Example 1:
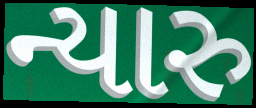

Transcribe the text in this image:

ન્યારુ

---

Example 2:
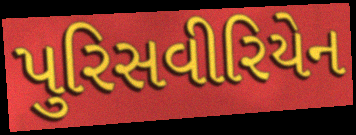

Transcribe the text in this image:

પુરિસવીરિયેન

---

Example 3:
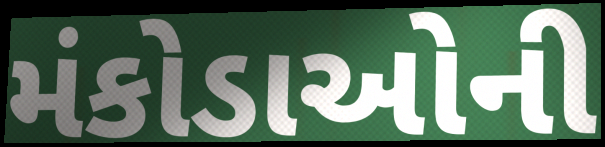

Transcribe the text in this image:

મંકોડાઓની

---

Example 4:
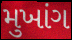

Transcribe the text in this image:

મુખાંગ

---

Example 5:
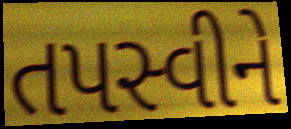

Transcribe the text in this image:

તપસ્વીને